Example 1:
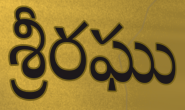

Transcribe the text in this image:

శ్రీరఘు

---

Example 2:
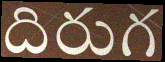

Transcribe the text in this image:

దిరుగ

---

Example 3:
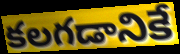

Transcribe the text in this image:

కలగడానికే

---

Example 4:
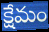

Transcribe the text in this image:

క్షేమం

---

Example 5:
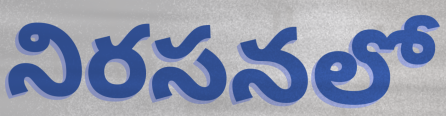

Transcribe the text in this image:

నిరసనలో